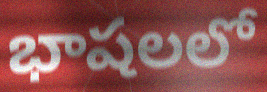
భాషలలో